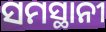
ସମସ୍ଥାନୀ